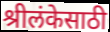
श्रीलंकेसाठी